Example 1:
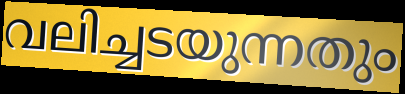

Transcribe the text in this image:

വലിച്ചടയുന്നതും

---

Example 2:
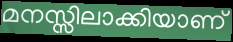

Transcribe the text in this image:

മനസ്സിലാക്കിയാണ്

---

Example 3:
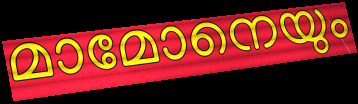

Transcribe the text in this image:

മാമോനെയും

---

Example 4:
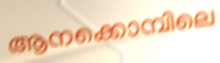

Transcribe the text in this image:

ആനക്കൊമ്പിലെ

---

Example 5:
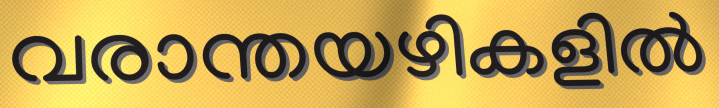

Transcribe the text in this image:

വരാന്തയഴികളിൽ